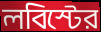
লবিস্টের